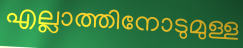
എല്ലാത്തിനോടുമുള്ള